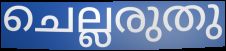
ചെല്ലരുതു